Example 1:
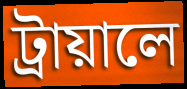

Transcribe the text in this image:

ট্রায়ালে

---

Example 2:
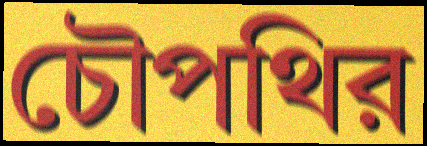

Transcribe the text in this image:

চৌপথির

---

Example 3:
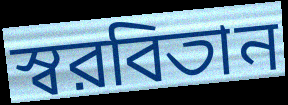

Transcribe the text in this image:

স্বরবিতান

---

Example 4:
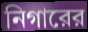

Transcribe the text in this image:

নিগারের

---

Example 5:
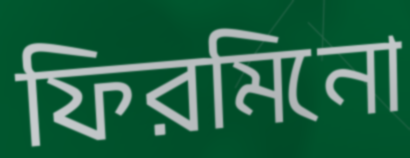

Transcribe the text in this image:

ফিরমিনো